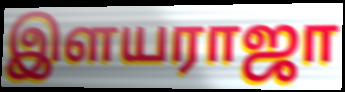
இளயராஜா